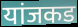
यांजकड